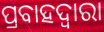
ପ୍ରବାହଦ୍ୱାରା